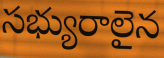
సభ్యురాలైన